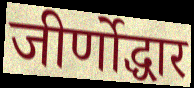
जीर्णोद्धार